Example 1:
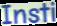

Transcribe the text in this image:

Insti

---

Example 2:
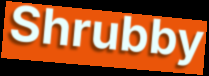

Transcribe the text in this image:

Shrubby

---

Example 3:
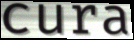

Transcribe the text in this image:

cura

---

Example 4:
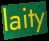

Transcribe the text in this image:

laity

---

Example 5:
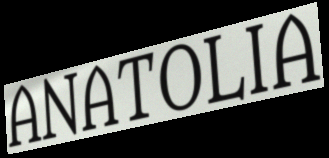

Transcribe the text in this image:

ANATOLIA